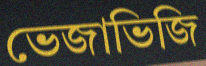
ভেজাভিজি